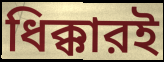
ধিক্কারই